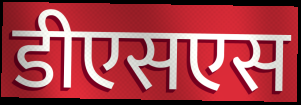
डीएसएस